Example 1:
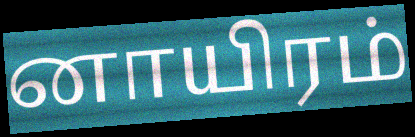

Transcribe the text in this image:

னாயிரம்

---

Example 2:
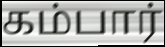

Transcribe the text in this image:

கம்பார்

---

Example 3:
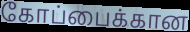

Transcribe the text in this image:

கோப்பைக்கான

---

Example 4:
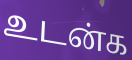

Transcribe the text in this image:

உடன்க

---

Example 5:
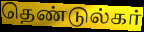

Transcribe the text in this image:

தெண்டுல்கர்